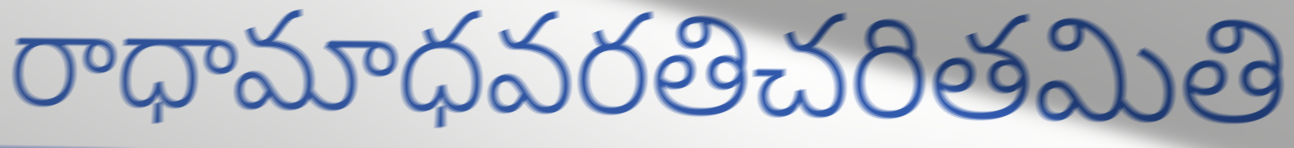
రాధామాధవరతిచరితమితి